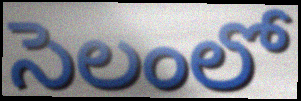
సెలంలో